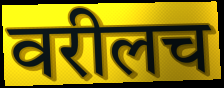
वरीलच